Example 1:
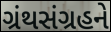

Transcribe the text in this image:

ગ્રંથસંગ્રહને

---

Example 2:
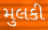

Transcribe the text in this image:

મુલકી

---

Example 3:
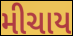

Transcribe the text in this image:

મીચાય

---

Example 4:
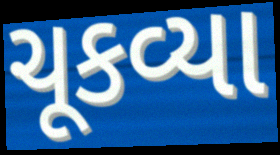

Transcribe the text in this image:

ચૂકવ્યા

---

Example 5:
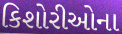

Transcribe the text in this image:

કિશોરીઓના